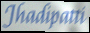
Jhadipatti